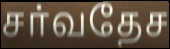
சர்வதேச